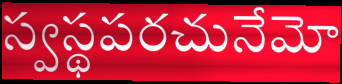
స్వస్థపరచునేమో